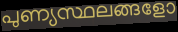
പുണ്യസ്ഥലങ്ങളോ